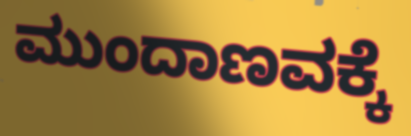
ಮುಂದಾಣವಕ್ಕೆ